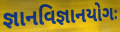
જ્ઞાનવિજ્ઞાનયોગઃ